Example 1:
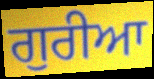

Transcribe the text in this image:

ਗੁਰੀਆ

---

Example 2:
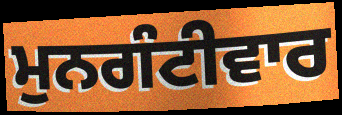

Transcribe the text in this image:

ਮੁਨਗੰਟੀਵਾਰ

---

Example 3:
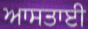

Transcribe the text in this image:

ਆਸਤਾਈ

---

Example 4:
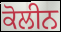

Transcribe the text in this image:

ਕੋਲੀਨ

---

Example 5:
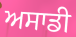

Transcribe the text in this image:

ਅਸਾਡੀ